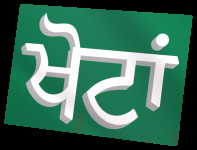
ਖੋਟਾਂ